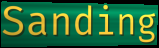
Sanding